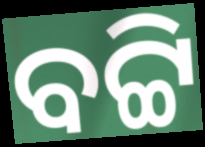
ବଟ୍ଟି